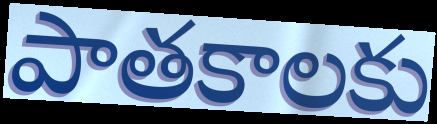
పాతకాలకు